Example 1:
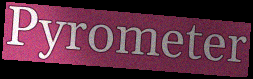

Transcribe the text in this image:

Pyrometer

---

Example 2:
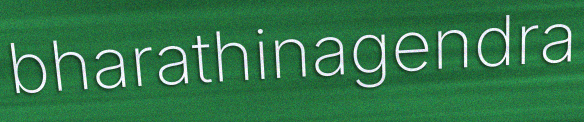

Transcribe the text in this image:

bharathinagendra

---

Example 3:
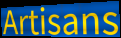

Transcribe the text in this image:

Artisans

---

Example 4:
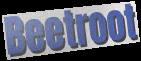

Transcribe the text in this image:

Beetroot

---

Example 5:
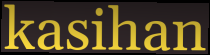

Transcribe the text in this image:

kasihan